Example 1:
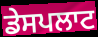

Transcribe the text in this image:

ਡੇਸਪਲਾਟ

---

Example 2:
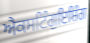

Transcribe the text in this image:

ਐਕਸਟਿੰਗੁਇਸ਼ਿੰਗ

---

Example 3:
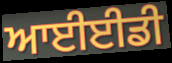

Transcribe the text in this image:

ਆਈਈਡੀ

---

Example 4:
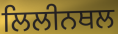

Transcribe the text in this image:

ਲਿਲੀਨਥਲ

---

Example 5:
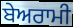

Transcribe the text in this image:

ਬੇਅਰਾਮੀ